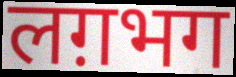
लग़भग